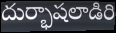
దుర్భాషలాడిరి